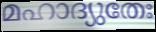
മഹാദ്യുതേഃ